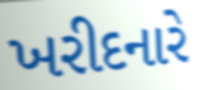
ખરીદનારે